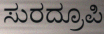
ಸುರದ್ರೂಪಿ